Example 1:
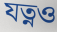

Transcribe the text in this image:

যত্নও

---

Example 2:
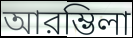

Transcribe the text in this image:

আরম্ভিলা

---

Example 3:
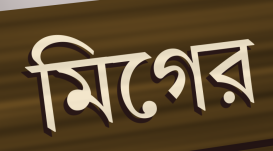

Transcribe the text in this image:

মিগের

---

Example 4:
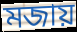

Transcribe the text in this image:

মজায়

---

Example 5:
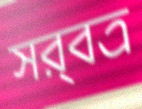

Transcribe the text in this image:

সর্‍বত্র